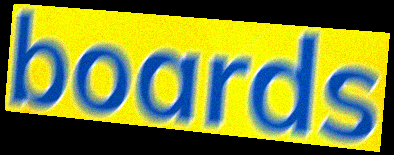
boards